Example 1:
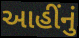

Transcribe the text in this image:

આહીંનું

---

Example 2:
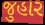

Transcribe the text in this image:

જુહાર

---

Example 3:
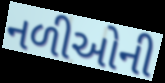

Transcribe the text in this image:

નળીઓની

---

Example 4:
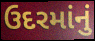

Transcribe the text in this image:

ઉદરમાંનું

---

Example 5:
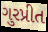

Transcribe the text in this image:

ગુરપ્રીત